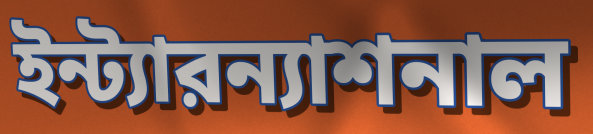
ইন্ট্যারন্যাশনাল